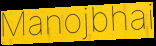
Manojbhai